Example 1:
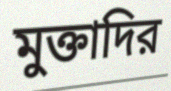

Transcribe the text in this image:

মুক্তাদির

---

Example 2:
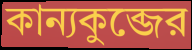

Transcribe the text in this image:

কান্যকুব্জের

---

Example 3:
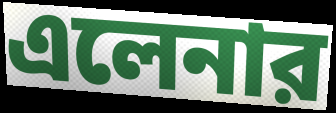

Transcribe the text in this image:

এলেনার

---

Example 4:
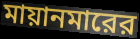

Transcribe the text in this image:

মায়ানমারের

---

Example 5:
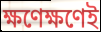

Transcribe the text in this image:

ক্ষণেক্ষণেই